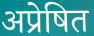
अप्रेषित